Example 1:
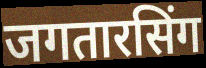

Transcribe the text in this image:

जगतारसिंग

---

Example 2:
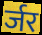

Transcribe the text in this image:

र्जर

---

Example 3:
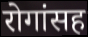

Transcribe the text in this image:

रोगांसह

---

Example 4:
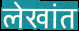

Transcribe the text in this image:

लेखांत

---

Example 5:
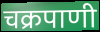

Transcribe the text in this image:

चक्रपाणी